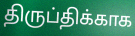
திருப்திக்காக